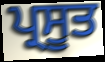
ਪ੍ਰਸੂਤ